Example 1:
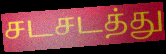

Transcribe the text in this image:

சடசடத்து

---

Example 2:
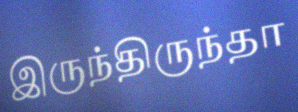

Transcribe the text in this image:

இருந்திருந்தா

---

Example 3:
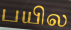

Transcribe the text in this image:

பயில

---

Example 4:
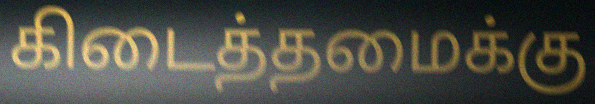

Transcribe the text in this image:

கிடைத்தமைக்கு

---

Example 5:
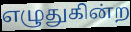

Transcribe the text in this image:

எழுதுகின்ற